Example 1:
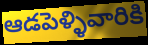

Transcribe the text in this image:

ఆడపెళ్ళివారికి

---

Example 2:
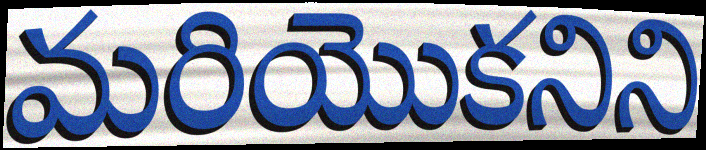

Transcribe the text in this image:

మరియొకనిని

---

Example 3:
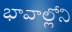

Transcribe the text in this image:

భావాల్లోని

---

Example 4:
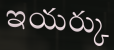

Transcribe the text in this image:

ఇయర్కు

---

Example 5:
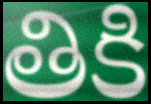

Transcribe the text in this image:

తికి